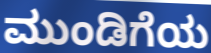
ಮುಂಡಿಗೆಯ